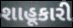
શાહૂકારી